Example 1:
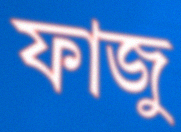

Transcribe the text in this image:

ফাজু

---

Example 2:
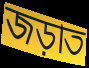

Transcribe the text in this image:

জড়াত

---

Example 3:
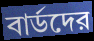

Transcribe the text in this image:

বার্ডদের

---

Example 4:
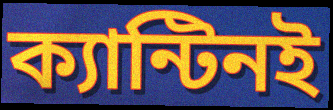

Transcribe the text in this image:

ক্যান্টিনই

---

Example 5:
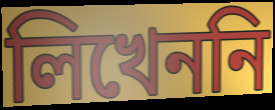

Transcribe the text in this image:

লিখেননি